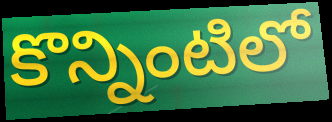
కొన్నింటిలో